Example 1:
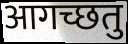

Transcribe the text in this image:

आगच्छतु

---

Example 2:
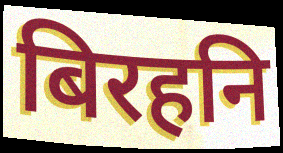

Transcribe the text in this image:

बिरहनि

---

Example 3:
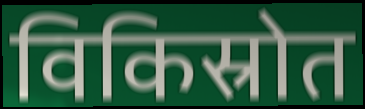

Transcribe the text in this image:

विकिस्रोत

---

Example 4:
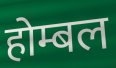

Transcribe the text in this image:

होम्बल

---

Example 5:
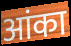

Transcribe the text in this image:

आंका